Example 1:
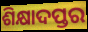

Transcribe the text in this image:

ଶିକ୍ଷାଦପ୍ତର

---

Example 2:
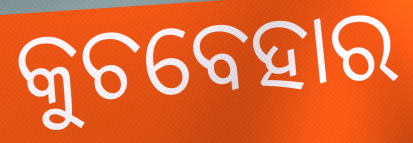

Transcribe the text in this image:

କୁଚବେହାର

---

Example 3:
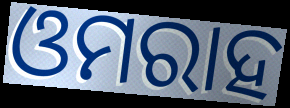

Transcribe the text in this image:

ଓମରାହ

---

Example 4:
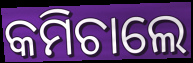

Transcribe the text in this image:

କମିଚାଲେ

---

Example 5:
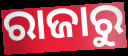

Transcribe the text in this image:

ରାଜାରୁ